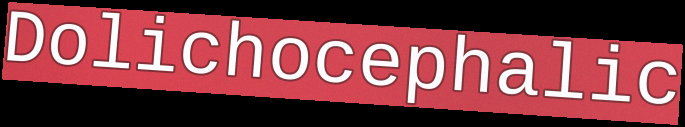
Dolichocephalic